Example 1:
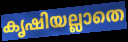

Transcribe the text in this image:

കൃഷിയല്ലാതെ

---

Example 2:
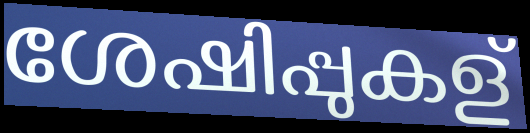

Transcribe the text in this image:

ശേഷിപ്പുകള്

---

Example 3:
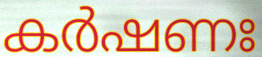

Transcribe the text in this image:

കർഷണഃ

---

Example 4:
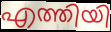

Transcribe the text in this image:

എത്തിയി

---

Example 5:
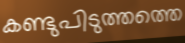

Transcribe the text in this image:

കണ്ടുപിടുത്തത്തെ